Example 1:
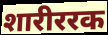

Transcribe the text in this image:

शारीररक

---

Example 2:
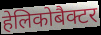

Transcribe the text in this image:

हेलिकोबैक्टर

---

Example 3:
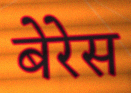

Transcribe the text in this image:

बेरेस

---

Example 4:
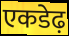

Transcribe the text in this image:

एकडेढ़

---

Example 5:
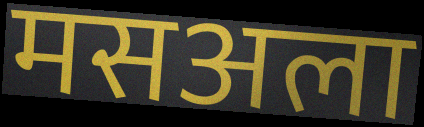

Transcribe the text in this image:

मसअला